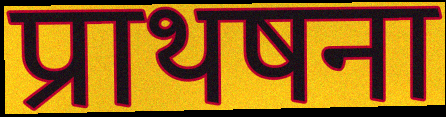
प्राथषना